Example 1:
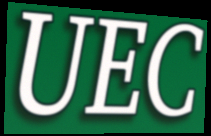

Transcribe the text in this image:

UEC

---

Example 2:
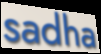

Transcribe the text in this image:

sadha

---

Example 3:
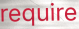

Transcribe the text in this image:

require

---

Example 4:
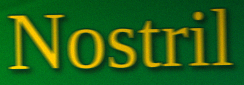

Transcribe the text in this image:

Nostril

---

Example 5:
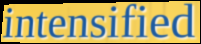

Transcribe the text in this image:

intensified